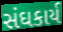
સંઘકાર્ય